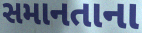
સમાનતાના